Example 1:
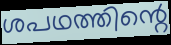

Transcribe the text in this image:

ശപഥത്തിന്റെ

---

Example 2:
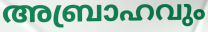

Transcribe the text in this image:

അബ്രാഹവും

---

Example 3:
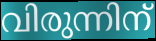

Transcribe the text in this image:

വിരുന്നിന്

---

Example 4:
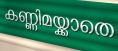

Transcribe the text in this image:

കണ്ണിമയ്ക്കാതെ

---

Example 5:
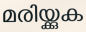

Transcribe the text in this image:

മരിയ്ക്കുക